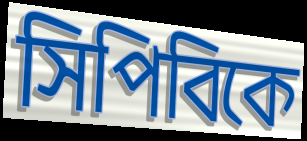
সিপিবিকে